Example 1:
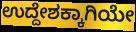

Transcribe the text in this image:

ಉದ್ದೇಶಕ್ಕಾಗಿಯೇ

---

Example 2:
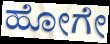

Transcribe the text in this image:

ಹೋಗೇ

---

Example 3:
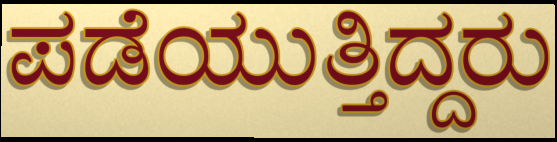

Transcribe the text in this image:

ಪಡೆಯುತ್ತಿದ್ದರು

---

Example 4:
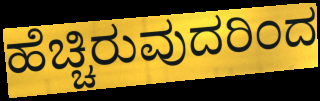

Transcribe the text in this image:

ಹೆಚ್ಚಿರುವುದರಿಂದ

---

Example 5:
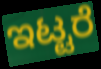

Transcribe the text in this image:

ಇಟ್ಟರೆ